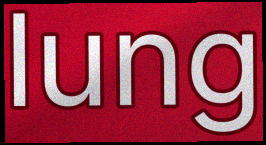
lung